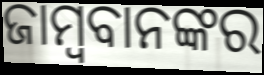
ଜାମ୍ବବାନଙ୍କର